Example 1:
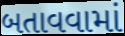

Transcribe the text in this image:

બતાવવામાં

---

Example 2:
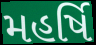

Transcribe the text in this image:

મહર્ષિ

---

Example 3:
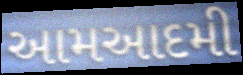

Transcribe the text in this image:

આમઆદમી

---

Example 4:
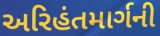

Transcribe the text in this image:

અરિહંતમાર્ગની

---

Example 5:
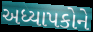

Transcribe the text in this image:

અધ્યાપકોને